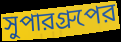
সুপারগ্রুপের